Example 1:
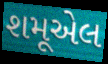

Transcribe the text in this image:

શમૂએલ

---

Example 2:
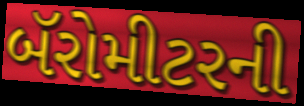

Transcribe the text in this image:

બૅરોમીટરની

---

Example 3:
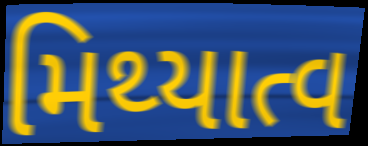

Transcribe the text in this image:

મિથ્યાત્વ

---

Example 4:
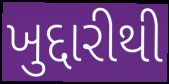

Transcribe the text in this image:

ખુદ્દારીથી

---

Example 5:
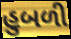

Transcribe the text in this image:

હુબળી